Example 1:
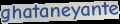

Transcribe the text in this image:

ghataneyante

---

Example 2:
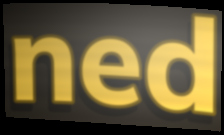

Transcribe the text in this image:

ned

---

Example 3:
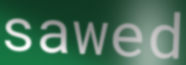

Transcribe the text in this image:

sawed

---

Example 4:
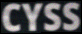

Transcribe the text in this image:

CYSS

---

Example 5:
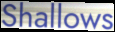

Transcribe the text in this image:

Shallows